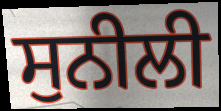
ਸੁਨੀਲੀ